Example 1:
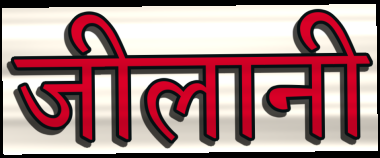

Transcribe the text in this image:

जीलानी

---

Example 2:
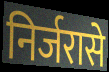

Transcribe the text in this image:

निर्जरासे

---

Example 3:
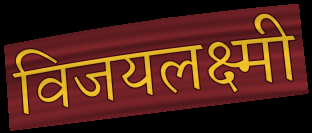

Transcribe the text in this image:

विजयलक्ष्मी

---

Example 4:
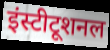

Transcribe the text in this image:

इंस्टीटूशनल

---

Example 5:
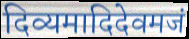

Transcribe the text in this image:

दिव्यमादिदेवमजं